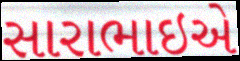
સારાભાઇએ